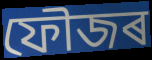
ফৌজৰ